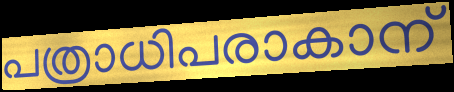
പത്രാധിപരാകാന്